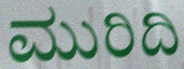
ಮುರಿದಿ